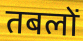
तबलों